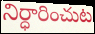
నిర్ధారించుట